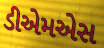
ડીએમએસ